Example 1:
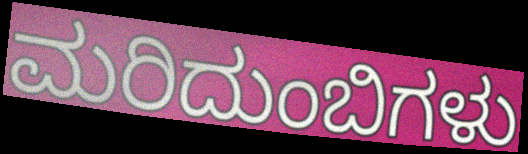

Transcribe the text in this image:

ಮರಿದುಂಬಿಗಳು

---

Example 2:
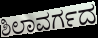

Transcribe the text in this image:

ಶಿಲಾವರ್ಗದ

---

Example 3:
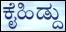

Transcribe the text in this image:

ಕೈಹಿಡ್ದು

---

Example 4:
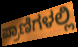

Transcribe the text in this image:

ಪ್ರಾಣಿಗಳಲ್ಲಿ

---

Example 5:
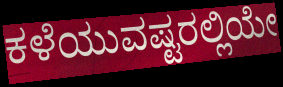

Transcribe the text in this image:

ಕಳೆಯುವಷ್ಟರಲ್ಲಿಯೇ